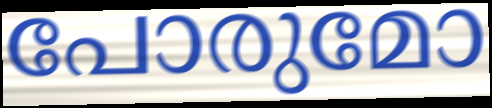
പോരുമോ